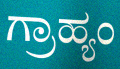
ಗ್ರಾಹ್ಯಂ